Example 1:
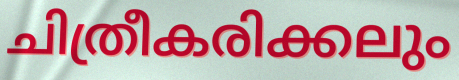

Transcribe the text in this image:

ചിത്രീകരിക്കലും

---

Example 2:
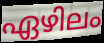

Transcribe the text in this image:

ഏഴിലം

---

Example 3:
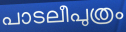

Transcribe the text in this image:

പാടലീപുത്രം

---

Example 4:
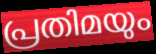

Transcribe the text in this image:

പ്രതിമയും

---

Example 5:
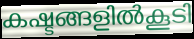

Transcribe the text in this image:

കഷ്ടങ്ങളിൽകൂടി